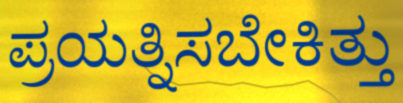
ಪ್ರಯತ್ನಿಸಬೇಕಿತ್ತು